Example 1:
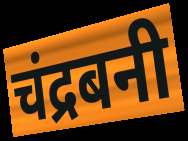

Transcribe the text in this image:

चंद्रबनी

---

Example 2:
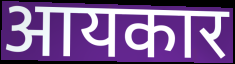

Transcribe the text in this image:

आयकार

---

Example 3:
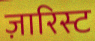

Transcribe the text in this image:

ज़ारिस्ट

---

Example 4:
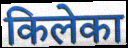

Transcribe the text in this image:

किलेका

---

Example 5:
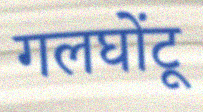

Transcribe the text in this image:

गलघोंटू